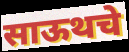
साऊथचे